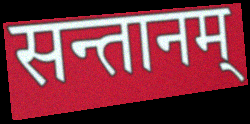
सन्तानम्